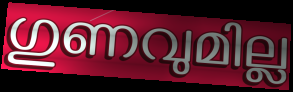
ഗുണവുമില്ല